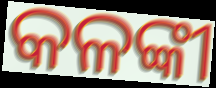
କଳଙ୍କୀ